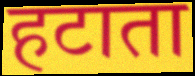
हटाता